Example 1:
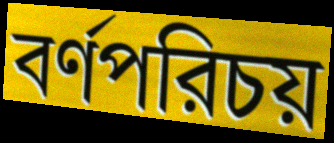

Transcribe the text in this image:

বর্ণপরিচয়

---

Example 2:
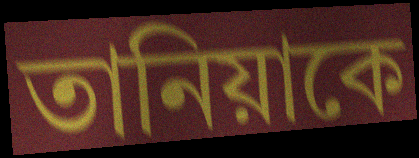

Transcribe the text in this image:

তানিয়াকে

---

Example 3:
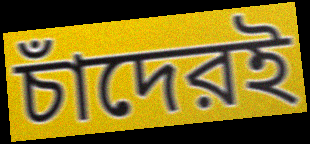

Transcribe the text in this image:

চাঁদেরই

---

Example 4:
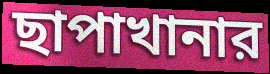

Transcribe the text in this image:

ছাপাখানার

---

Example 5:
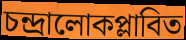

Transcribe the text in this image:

চন্দ্রালোকপ্লাবিত